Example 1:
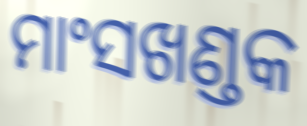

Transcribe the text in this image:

ମାଂସଖଣ୍ଡକ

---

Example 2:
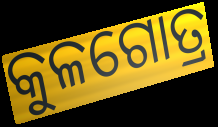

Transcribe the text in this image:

କୁଳଗୋତ୍ର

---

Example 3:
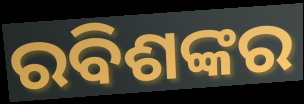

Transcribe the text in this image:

ରବିଶଙ୍କର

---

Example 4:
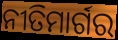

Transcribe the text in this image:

ନୀତିମାର୍ଗର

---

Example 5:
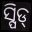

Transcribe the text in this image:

ସ୍ପିଡ୍